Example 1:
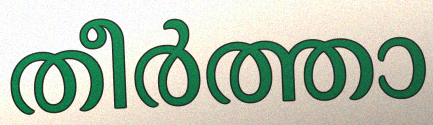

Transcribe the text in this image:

തീർത്താ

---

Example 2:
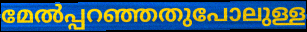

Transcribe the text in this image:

മേൽപ്പറഞ്ഞതുപോലുള്ള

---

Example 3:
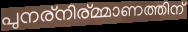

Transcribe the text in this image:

പുനര്നിര്മ്മാണത്തിന്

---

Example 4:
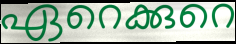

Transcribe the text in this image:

ഏറെക്കുറെ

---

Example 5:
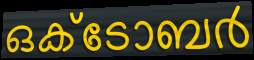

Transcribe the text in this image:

ഒക്ടോബർ